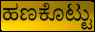
ಹಣಕೊಟ್ಟು